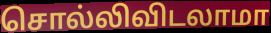
சொல்லிவிடலாமா